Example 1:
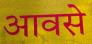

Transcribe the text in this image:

आवसे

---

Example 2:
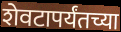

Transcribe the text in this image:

शेवटापर्यंतच्या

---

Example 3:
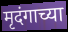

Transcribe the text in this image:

मृदंगाच्या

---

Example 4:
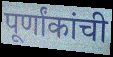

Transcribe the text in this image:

पूर्णांकांची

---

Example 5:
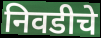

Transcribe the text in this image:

निवडीचे